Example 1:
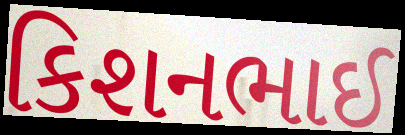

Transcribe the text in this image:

કિશનભાઈ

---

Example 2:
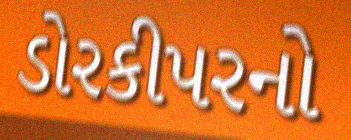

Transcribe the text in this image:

ડોરકીપરનો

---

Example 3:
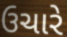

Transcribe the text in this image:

ઉચારે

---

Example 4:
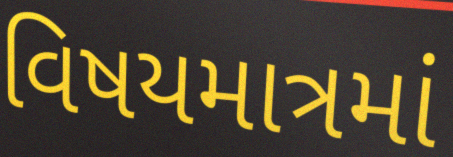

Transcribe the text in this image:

વિષયમાત્રમાં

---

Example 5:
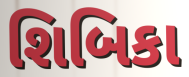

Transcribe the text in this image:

શિબિકા